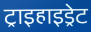
ट्राइहाइड्रेट